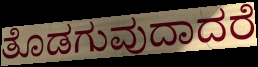
ತೊಡಗುವುದಾದರೆ